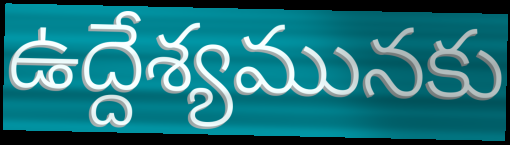
ఉద్దేశ్యమునకు